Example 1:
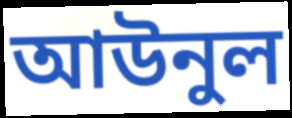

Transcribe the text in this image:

আউনুল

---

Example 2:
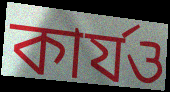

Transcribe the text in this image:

কার্যও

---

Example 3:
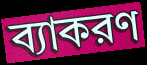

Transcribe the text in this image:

ব্যাকরণ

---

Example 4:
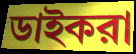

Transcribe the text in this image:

ডাইকরা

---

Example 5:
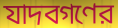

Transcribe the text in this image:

যাদবগণের